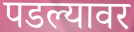
पडल्यावर